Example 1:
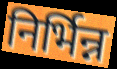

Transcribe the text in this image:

निर्भिन्न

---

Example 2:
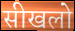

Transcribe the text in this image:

सीखलो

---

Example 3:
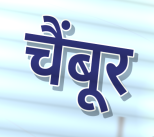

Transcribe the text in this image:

चैंबूर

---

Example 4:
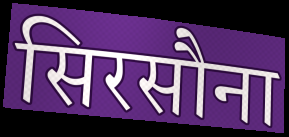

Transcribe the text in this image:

सिरसौना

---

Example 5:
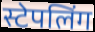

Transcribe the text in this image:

स्टेपलिंग